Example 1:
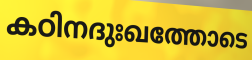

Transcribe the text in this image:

കഠിനദുഃഖത്തോടെ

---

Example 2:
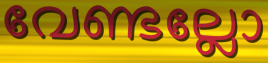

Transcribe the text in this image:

വേണ്ടല്ലോ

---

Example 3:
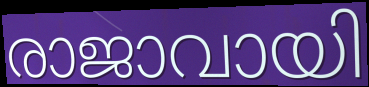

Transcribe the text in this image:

രാജാവായി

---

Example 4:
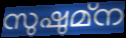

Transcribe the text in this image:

സുഷുമ്ന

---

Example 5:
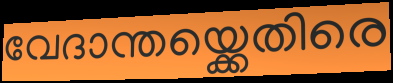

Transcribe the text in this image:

വേദാന്തയ്ക്കെതിരെ